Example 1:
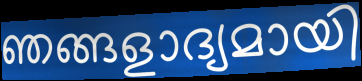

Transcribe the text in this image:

ഞങ്ങളാദ്യമായി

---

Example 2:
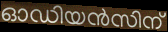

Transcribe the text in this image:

ഓഡിയൻസിന്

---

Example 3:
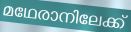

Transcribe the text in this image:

മഥേരാനിലേക്ക്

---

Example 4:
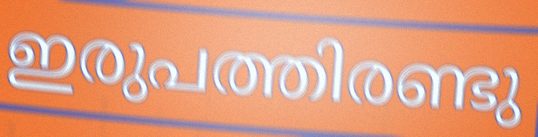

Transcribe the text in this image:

ഇരുപത്തിരണ്ടു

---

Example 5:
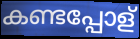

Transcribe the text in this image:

കണ്ടപ്പോള്